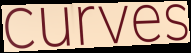
curves